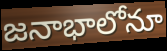
జనాభాలోనూ